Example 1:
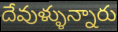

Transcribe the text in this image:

దేవుళ్ళున్నారు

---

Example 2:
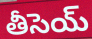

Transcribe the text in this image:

తీసెయ్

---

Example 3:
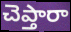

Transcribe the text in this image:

చెప్తారా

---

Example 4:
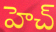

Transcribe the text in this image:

హెచ్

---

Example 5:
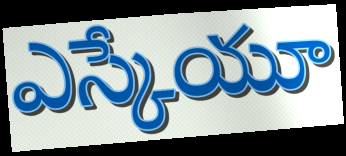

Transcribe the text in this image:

ఎస్కేయూ